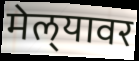
मेल्यावर